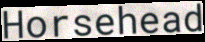
Horsehead